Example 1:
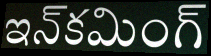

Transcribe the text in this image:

ఇన్‌కమింగ్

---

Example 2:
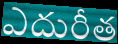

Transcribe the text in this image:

ఎదురీత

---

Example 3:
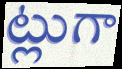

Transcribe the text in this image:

ట్లుగా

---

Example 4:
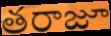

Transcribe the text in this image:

తరాజూ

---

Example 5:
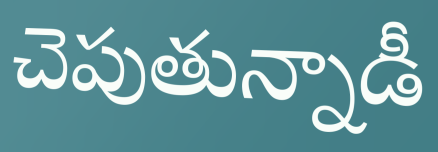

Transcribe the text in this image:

చెపుతున్నాడీ